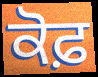
ਕੋਫ਼